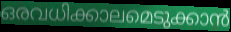
ഒരവധിക്കാലമെടുക്കാൻ